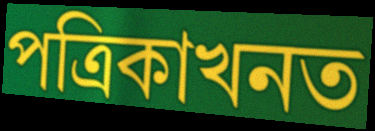
পত্ৰিকাখনত